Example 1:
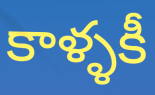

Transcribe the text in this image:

కాళ్ళకీ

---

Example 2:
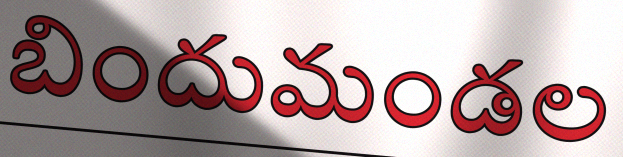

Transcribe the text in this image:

బిందుమండల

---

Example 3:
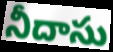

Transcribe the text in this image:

నీదాసు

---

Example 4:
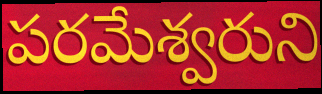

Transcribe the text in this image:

పరమేశ్వరుని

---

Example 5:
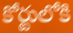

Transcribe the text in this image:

కోర్టులోకి